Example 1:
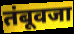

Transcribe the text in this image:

तंबूवजा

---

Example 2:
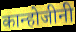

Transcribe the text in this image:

कान्होजीनी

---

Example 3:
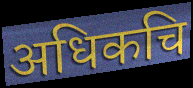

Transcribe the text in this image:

अधिकचि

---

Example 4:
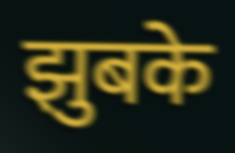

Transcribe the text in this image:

झुबके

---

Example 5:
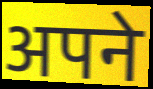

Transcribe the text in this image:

अपने